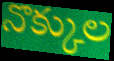
నొక్కుల